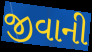
જીવાની